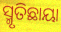
ସ୍ମୃତିଛାୟା